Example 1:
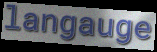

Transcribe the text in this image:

langauge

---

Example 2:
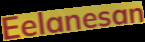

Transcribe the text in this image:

Eelanesan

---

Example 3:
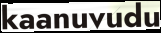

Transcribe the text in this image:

kaanuvudu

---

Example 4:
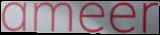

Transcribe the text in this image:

ameer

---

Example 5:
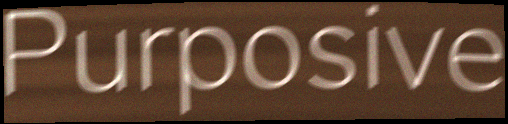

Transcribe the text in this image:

Purposive